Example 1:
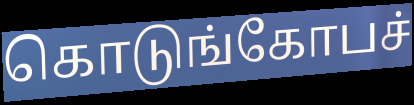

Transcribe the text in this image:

கொடுங்கோபச்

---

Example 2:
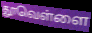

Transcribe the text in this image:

தூவெள்ளை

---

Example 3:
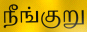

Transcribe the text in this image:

நீங்குறு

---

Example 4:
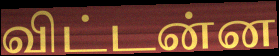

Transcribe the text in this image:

விட்டன்ன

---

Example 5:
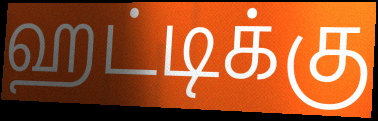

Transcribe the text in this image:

ஹட்டிக்கு